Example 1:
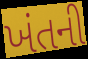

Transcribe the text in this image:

ખંતની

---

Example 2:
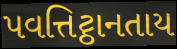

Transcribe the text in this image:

પવત્તિટ્ઠાનતાય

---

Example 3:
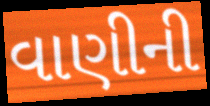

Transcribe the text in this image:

વાણીની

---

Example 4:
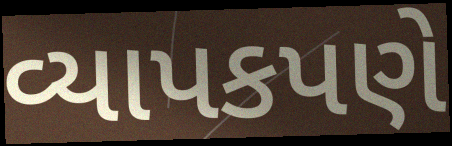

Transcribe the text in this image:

વ્યાપકપણે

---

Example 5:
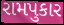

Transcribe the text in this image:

રામપુકાર